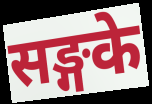
सङ्गके